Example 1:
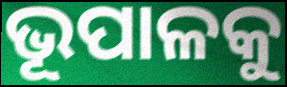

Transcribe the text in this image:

ଭୂପାଳକୁ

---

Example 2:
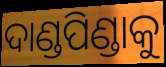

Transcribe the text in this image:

ଦାଣ୍ଡପିଣ୍ଡାକୁ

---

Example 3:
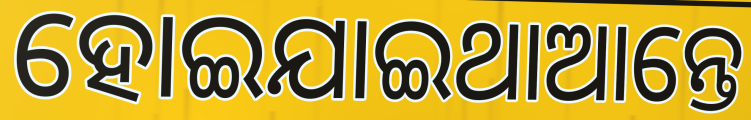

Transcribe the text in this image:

ହୋଇଯାଇଥାଆନ୍ତେ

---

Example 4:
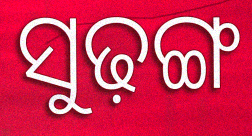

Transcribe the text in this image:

ସୁଢ଼ଙ୍ଗ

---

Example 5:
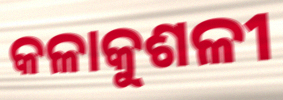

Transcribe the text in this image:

କଳାକୁଶଳୀ